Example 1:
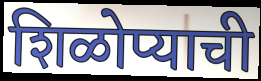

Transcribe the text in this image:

शिळोप्याची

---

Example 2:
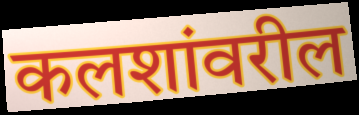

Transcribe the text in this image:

कलशांवरील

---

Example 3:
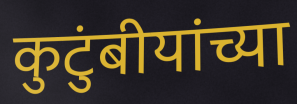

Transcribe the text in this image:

कुटुंबीयांच्या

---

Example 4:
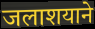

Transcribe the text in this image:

जलाशयाने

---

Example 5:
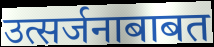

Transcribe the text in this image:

उत्सर्जनाबाबत